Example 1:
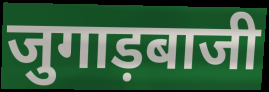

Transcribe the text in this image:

जुगाड़बाजी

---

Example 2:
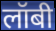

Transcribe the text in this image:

लॉबी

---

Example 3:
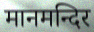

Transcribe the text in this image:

मानमन्दिर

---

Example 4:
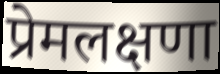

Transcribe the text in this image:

प्रेमलक्षणा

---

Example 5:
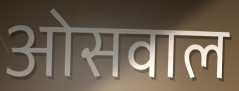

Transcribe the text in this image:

ओसवाल